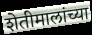
शेतीमालांच्या